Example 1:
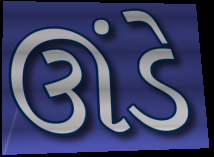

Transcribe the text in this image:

ઊંડે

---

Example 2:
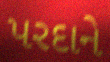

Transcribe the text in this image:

પરદાને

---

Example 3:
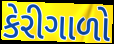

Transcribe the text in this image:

કેરીગાળો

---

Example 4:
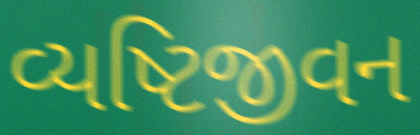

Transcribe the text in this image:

વ્યષ્ટિજીવન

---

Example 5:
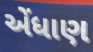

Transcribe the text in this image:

એંધાણ